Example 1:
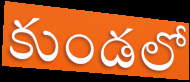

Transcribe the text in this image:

కుండలో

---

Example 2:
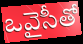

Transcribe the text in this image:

ఒవైసీతో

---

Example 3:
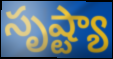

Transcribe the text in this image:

సృష్ట్యా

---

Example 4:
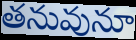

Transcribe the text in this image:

తనువునూ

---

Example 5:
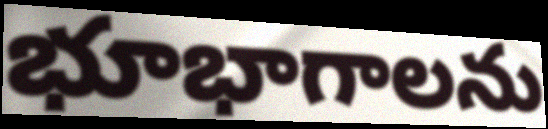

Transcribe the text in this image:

భూభాగాలను